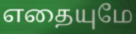
எதையுமே